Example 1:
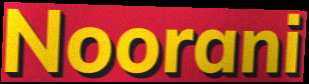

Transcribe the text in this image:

Noorani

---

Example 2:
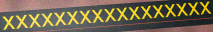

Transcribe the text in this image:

xxxxxxxxxxxxxxxxx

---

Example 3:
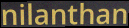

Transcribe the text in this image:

nilanthan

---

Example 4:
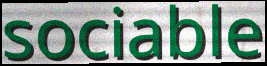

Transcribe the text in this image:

sociable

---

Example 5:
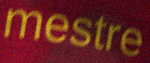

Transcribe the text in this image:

mestre